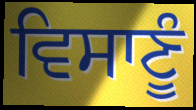
ਵਿਸਾਣੂੰ